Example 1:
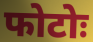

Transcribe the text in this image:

फोटोः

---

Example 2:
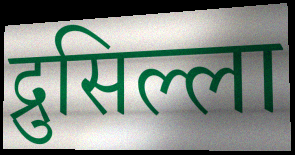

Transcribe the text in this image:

द्रुसिल्ला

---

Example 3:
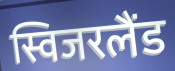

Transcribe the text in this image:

स्विजरलैंड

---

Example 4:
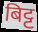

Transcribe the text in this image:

बिट्ट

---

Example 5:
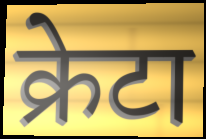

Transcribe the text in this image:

क्रेटा